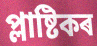
প্লাষ্টিকৰ